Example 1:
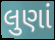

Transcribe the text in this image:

લુણાં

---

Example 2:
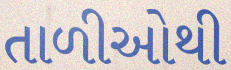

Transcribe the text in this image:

તાળીઓથી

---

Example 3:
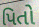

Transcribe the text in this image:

પિતો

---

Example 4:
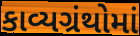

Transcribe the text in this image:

કાવ્યગ્રંથોમાં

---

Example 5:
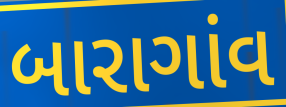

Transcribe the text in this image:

બારાગાંવ